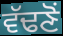
ਵੱਢਣੋਂ